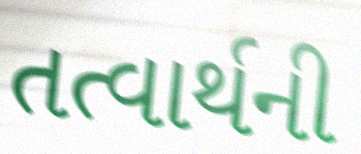
તત્વાર્થની